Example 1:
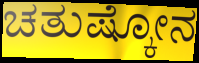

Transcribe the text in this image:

ಚತುಷ್ಕೋನ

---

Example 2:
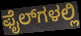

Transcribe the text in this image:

ಫೈಲ್‌ಗಳಲ್ಲಿ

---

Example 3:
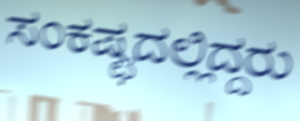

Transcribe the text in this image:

ಸಂಕಷ್ಟದಲ್ಲಿದ್ದರು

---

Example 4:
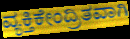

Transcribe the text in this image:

ವ್ಯಕ್ತಿಕೇಂದ್ರಿತವಾಗಿ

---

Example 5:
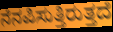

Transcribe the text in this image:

ನೆನಪಿಸುತ್ತಿರುತ್ತದೆ